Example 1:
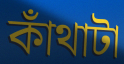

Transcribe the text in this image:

কাঁথাটা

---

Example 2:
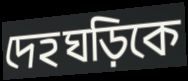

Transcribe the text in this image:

দেহঘড়িকে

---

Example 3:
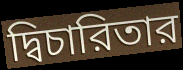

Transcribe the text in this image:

দ্বিচারিতার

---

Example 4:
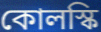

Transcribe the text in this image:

কোলস্কি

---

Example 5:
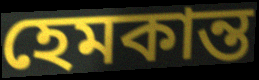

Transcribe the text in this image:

হেমকান্ত